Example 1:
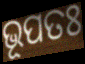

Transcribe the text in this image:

ଭୂପତଃ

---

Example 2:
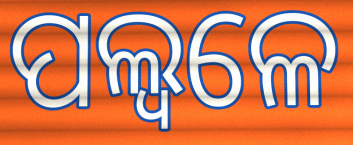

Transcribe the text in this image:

ପଲ୍ୱଳେ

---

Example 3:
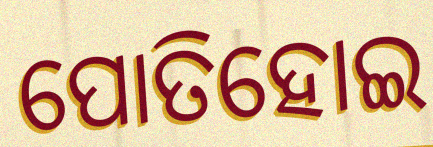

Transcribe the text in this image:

ପୋତିହୋଇ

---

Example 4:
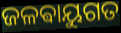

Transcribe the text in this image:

ଜଳଵାୟୁଗତ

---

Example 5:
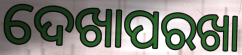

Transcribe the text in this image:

ଦେଖାପରଖା